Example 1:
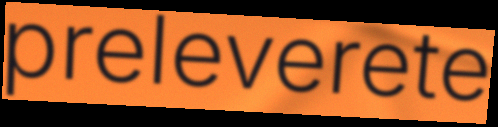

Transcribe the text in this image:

preleverete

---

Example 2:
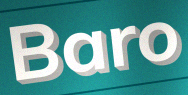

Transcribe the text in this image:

Baro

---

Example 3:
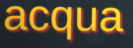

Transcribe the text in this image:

acqua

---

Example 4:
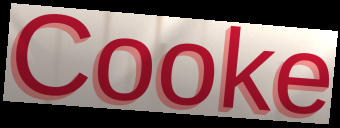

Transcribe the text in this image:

Cooke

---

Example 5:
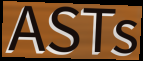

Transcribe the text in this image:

ASTs